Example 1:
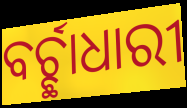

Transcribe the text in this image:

ବର୍ଚ୍ଛାଧାରୀ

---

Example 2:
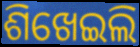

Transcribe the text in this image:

ଶିଖେଇଲି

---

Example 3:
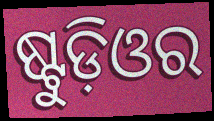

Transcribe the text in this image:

ଷ୍ଟୁଡ଼ିଓର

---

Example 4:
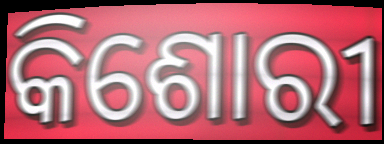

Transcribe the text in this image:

କିଶୋରୀ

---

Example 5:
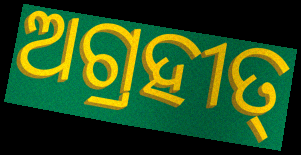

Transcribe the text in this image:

ଅଗ୍ରହୀତ୍